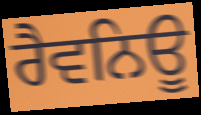
ਰੈਵਨਿਊ